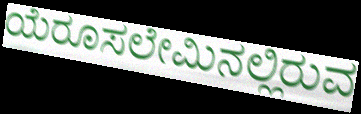
ಯೆರೂಸಲೇಮಿನಲ್ಲಿರುವ